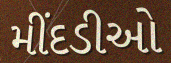
મીંદડીઓ